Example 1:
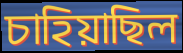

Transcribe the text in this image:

চাহিয়াছিল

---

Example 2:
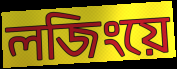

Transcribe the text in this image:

লজিংয়ে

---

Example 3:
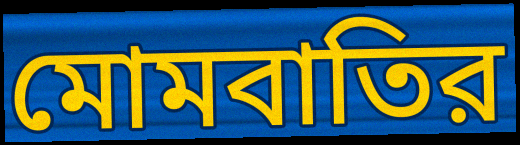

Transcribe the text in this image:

মোমবাতির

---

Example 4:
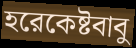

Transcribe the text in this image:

হরেকেষ্টবাবু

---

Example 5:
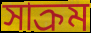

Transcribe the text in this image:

সাক্রম